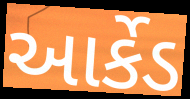
આર્કેડ